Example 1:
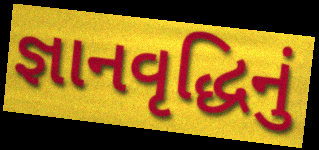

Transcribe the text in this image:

જ્ઞાનવૃદ્ધિનું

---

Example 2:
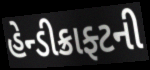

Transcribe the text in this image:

હેન્ડીક્રાફ્ટની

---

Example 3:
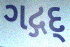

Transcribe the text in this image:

ગદ્ગદ્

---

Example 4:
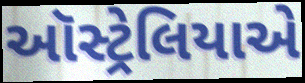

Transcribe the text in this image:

ઑસ્ટ્રેલિયાએ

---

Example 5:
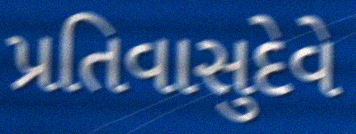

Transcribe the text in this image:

પ્રતિવાસુદેવે